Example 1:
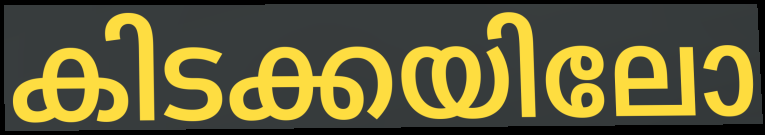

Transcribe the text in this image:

കിടക്കയിലോ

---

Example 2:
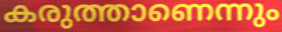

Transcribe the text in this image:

കരുത്താണെന്നും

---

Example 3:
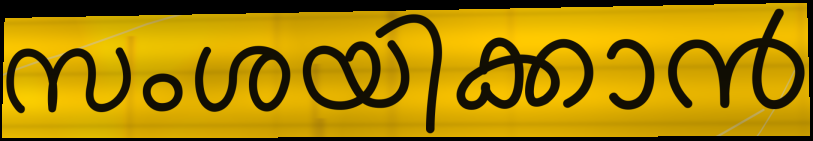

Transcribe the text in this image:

സംശയിക്കാൻ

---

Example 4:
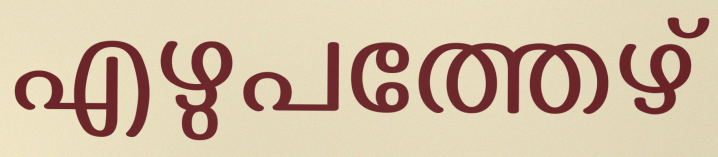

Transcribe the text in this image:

എഴുപത്തേഴ്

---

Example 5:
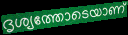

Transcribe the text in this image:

ദൃശ്യത്തോടെയാണ്